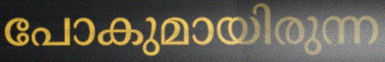
പോകുമായിരുന്ന